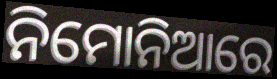
ନିମୋନିଆରେ